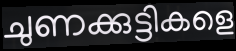
ചുണക്കുട്ടികളെ